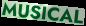
MUSICAL